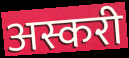
अस्करी